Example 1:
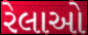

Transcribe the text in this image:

રેલાઓ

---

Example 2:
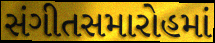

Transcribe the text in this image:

સંગીતસમારોહમાં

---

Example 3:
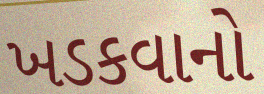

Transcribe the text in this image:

ખડકવાનો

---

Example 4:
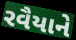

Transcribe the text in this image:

રવૈયાને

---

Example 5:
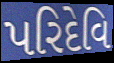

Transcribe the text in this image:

પરિદેવિ